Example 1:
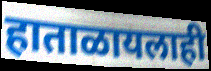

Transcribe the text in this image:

हाताळायलाही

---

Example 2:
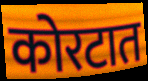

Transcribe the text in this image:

कोरटात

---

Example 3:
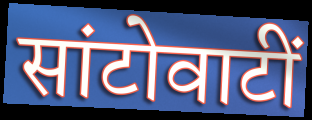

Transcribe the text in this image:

सांटोवाटीं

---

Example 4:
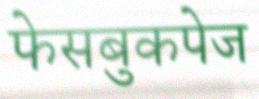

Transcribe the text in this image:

फेसबुकपेज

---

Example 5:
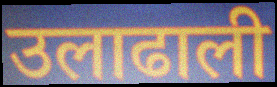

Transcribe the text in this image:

उलाढाली